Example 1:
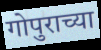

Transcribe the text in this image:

गोपुराच्या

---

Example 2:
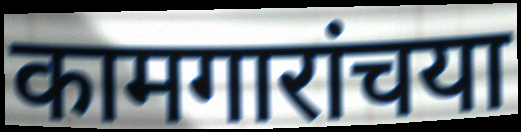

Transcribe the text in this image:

कामगारांचया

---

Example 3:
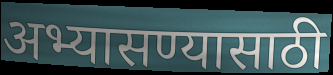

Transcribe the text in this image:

अभ्यासण्यासाठी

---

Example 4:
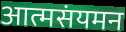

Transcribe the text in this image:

आत्मसंयमन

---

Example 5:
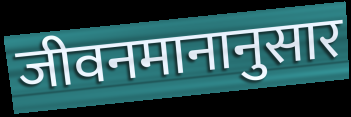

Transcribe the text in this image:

जीवनमानानुसार